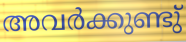
അവർക്കുണ്ടു്